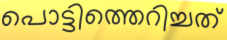
പൊട്ടിത്തെറിച്ചത്